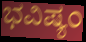
ಭವಿಷ್ಯಂ